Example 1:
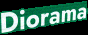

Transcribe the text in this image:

Diorama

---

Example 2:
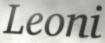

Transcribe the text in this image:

Leoni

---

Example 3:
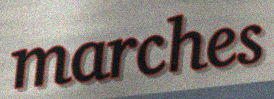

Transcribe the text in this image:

marches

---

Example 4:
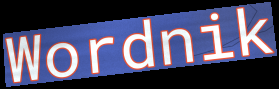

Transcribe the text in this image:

Wordnik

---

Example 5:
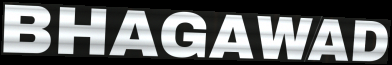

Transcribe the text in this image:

BHAGAWAD